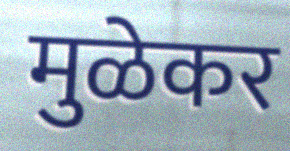
मुळेकर